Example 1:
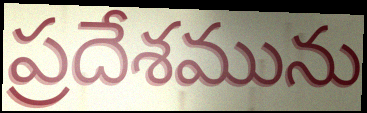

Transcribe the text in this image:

ప్రదేశమును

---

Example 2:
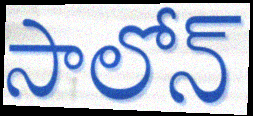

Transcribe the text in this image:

సాలోన్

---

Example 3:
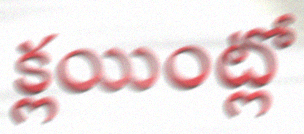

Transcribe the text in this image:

క్లయింట్లో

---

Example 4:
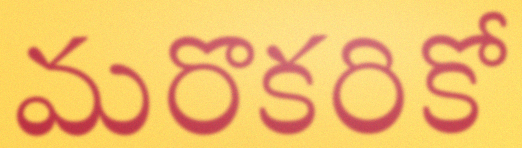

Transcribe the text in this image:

మరొకరికో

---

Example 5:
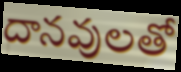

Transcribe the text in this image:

దానవులతో